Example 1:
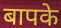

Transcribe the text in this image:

बापके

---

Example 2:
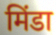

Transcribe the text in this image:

मिंडा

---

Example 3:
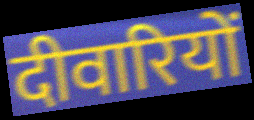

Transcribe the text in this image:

दीवारियों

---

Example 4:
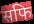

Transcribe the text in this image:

सफि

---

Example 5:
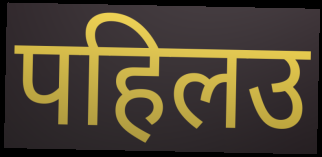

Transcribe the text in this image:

पहिलउ